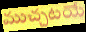
ముచ్చటయే